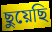
ছুয়েছি